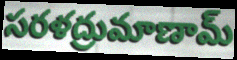
సరళద్రుమాణామ్